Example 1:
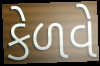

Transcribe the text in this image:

કેળવે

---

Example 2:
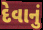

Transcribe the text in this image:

દેવાનું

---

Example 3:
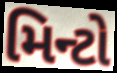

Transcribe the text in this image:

મિન્ટો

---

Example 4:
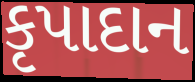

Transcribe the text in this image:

કૃપાદાન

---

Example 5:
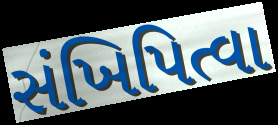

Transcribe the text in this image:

સંખિપિત્વા